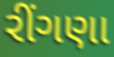
રીંગણા